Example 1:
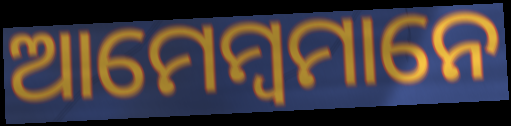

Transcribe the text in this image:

ଆମେମ୍ବମାନେ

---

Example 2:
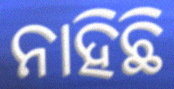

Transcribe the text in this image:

ନାହିଛି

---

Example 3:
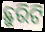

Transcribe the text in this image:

ଛୁରିଟି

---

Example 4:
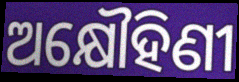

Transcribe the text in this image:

ଅକ୍ଷୌହିଣୀ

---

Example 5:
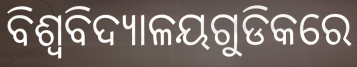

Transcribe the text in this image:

ବିଶ୍ଵବିଦ୍ୟାଳୟଗୁଡିକରେ